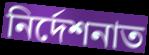
নিৰ্দেশনাত